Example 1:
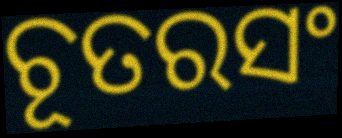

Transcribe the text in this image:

ଚୂତରସଂ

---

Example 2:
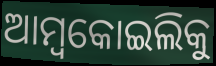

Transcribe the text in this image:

ଆମ୍ବକୋଇଲିକୁ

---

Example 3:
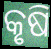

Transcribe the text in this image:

କୃଷି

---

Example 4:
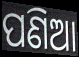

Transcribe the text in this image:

ପଣିଆ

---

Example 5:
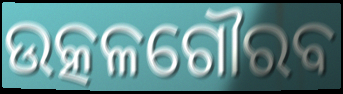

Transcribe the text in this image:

ଉତ୍କଳଗୌରବ